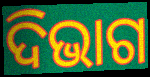
ଦିଭାଗ